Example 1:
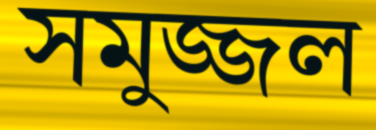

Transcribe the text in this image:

সমুজ্জল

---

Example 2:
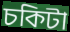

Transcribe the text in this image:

চকিটা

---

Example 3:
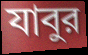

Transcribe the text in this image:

যাবুর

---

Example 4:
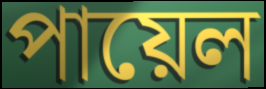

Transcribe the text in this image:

পায়েল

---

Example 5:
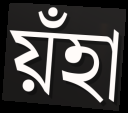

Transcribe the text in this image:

য়ঁহা